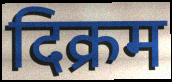
दिक्रम